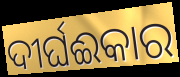
ଦୀର୍ଘଈକାର